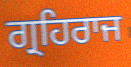
ਗ੍ਰਹਿਰਾਜ